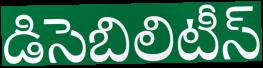
డిసెబిలిటీస్